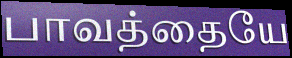
பாவத்தையே